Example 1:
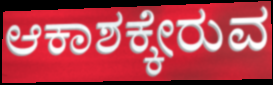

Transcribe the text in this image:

ಆಕಾಶಕ್ಕೇರುವ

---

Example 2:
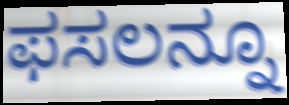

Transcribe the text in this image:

ಫಸಲನ್ನೂ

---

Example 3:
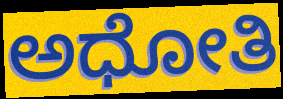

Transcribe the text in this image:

ಅಧೋತಿ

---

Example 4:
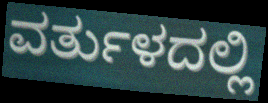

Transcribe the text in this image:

ವರ್ತುಳದಲ್ಲಿ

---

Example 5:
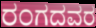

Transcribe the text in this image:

ರಂಗದವರ